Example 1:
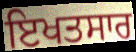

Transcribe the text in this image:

ਇਖਤਸਾਰ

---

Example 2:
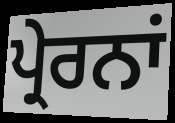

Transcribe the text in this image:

ਪ੍ਰੇਰਨਾਂ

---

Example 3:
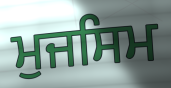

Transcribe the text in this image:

ਮੁਜਸਿਮ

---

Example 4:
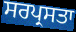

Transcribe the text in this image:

ਸਰਪ੍ਰਸਤਾ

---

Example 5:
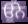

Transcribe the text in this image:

ਉੱਨੇ